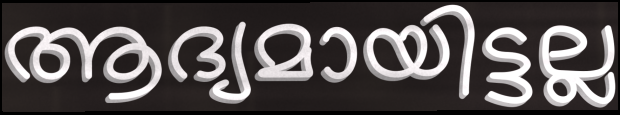
ആദ്യമായിട്ടല്ല